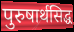
पुरुषार्थसिद्ध